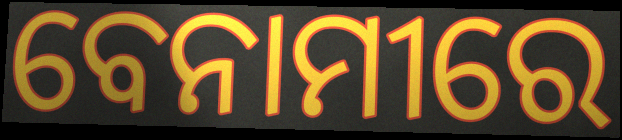
ବେନାମୀରେ